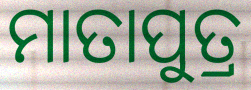
ମାତାପୁତ୍ର